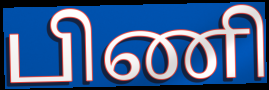
பிணி